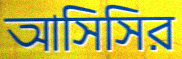
আসিসির